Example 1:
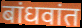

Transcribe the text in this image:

बांधवांत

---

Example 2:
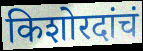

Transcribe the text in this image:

किशोरदांचं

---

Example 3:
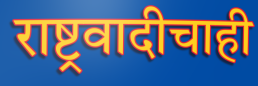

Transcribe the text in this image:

राष्ट्रवादीचाही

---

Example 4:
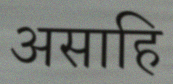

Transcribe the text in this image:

असाहि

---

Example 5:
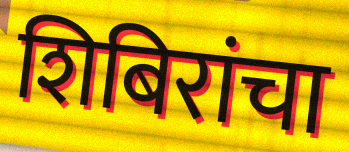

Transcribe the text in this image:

शिबिरांचा